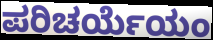
ಪರಿಚರ್ಯೆಯಂ